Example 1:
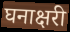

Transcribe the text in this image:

घनाक्षरी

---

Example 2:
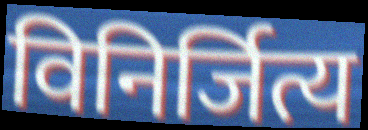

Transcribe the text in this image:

विनिर्जित्य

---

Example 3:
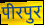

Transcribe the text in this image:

पीरपुर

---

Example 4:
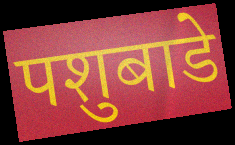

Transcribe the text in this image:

पशुबाडे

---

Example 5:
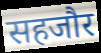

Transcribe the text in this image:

सहजौर